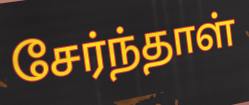
சேர்ந்தாள்